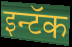
इन्टॅक